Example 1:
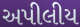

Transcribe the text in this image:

અપીલીય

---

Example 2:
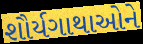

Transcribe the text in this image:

શૌર્યગાથાઓને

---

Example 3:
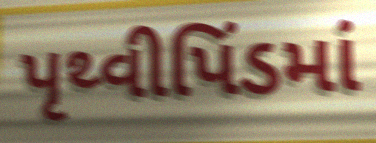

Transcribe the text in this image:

પૃથ્વીપિંડમાં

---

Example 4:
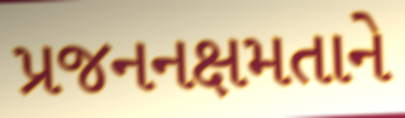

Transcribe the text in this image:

પ્રજનનક્ષમતાને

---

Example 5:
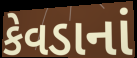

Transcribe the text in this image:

કેવડાનાં